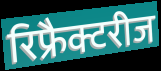
रिफ्रैक्टरीज